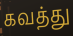
கவத்து